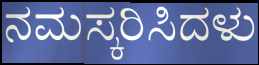
ನಮಸ್ಕರಿಸಿದಳು